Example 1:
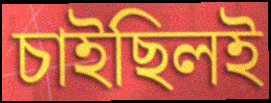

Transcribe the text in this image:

চাইছিলই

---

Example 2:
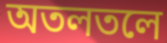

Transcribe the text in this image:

অতলতলে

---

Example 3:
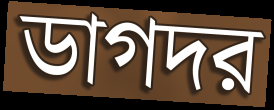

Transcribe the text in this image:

ডাগদর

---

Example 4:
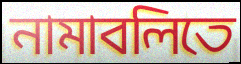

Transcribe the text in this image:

নামাবলিতে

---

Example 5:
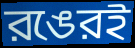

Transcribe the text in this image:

রঙেরই